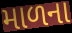
માળના